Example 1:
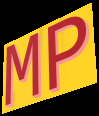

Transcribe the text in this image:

MP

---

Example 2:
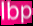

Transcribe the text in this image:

lbp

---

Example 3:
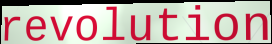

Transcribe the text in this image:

revolution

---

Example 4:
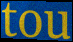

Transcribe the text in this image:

tou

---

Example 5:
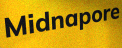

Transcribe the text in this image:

Midnapore